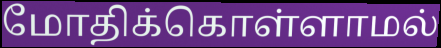
மோதிக்கொள்ளாமல்